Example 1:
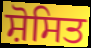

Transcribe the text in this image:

ਸ਼ੋਸਿਤ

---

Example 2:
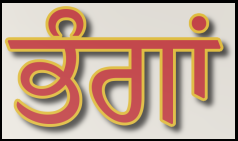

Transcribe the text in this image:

ਭੰਗਾਂ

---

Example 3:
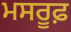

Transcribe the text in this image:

ਮਸਰੂਫ਼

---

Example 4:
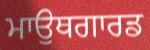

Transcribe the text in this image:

ਮਾਉਥਗਾਰਡ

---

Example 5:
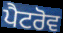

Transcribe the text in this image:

ਪੈਟਰੋਵ